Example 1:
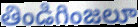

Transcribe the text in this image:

తిండిగింజలూ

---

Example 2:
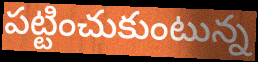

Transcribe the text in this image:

పట్టించుకుంటున్న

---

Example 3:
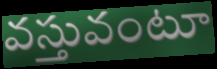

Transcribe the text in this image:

వస్తువంటూ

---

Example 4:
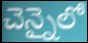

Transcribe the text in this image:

చెన్నైలో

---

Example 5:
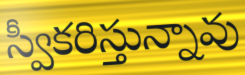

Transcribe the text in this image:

స్వీకరిస్తున్నావు